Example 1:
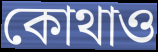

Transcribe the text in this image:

কোথাও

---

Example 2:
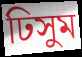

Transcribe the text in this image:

ঢিসুম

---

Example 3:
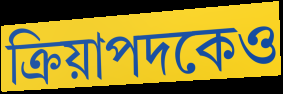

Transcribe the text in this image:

ক্রিয়াপদকেও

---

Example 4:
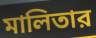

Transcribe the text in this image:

মালিতার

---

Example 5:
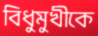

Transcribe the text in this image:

বিধুমুখীকে